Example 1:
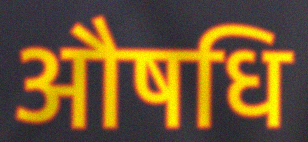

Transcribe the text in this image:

औषधि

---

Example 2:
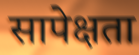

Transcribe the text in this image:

सापेक्षता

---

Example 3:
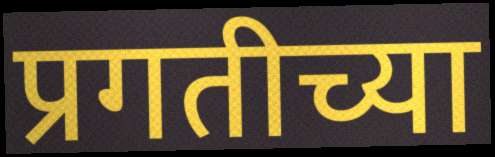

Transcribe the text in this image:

प्रगतीच्या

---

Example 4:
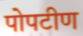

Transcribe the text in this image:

पोपटीण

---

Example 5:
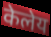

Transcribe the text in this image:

केलेय